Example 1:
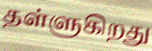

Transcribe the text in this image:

தள்ளுகிறது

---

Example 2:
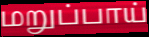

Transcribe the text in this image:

மறுப்பாய்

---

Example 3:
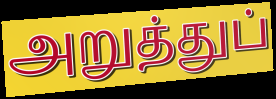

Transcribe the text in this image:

அறுத்துப்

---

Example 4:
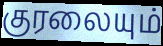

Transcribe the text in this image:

குரலையும்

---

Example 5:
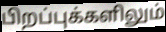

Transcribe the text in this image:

பிறப்புக்களிலும்